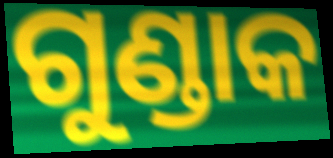
ଗୁଣ୍ଡାକ